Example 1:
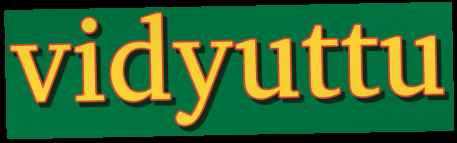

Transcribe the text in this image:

vidyuttu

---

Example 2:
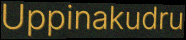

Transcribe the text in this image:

Uppinakudru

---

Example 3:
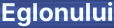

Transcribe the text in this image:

Eglonului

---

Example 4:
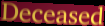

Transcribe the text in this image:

Deceased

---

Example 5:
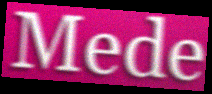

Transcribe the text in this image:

Mede